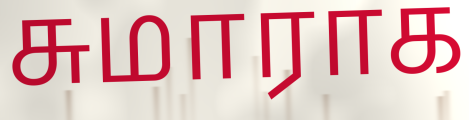
சுமாராக